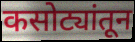
कसोट्यांतून